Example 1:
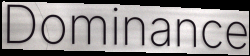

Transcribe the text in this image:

Dominance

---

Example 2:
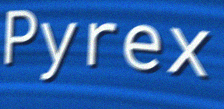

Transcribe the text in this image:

Pyrex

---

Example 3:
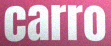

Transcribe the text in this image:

carro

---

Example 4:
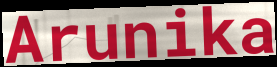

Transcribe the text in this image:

Arunika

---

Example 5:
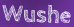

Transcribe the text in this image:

Wushe